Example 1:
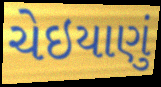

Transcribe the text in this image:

ચેઇયાણું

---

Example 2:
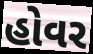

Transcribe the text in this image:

હોવર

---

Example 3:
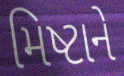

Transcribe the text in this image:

મિષ્ટાને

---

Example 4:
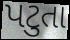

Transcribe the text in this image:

પટુતા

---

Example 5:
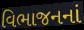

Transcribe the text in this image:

વિભાજનનાં